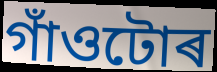
গাঁওটোৰ